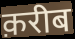
क़रीब